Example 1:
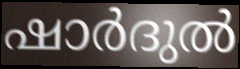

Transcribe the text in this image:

ഷാർദുൽ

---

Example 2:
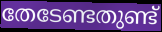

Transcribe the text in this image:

തേടേണ്ടതുണ്ട്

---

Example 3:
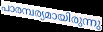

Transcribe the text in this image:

പാരമ്പര്യമായിരുന്നു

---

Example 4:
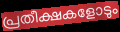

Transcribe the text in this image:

പ്രതീക്ഷകളോടും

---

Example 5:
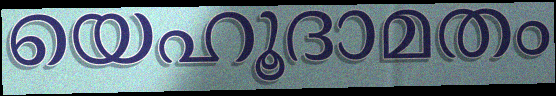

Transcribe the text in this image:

യെഹൂദാമതം